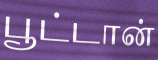
பூட்டான்